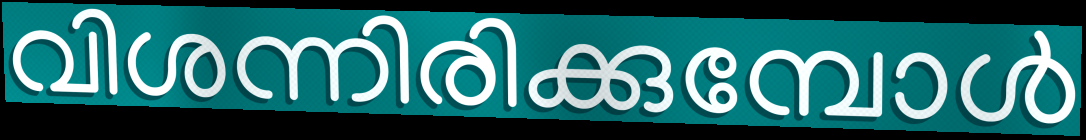
വിശന്നിരിക്കുമ്പോൾ